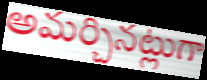
అమర్చినట్లుగా